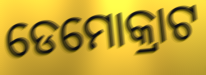
ଡେମୋକ୍ରାଟ